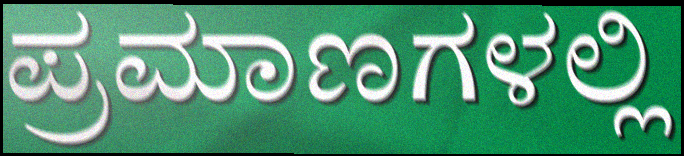
ಪ್ರಮಾಣಗಳಲ್ಲಿ